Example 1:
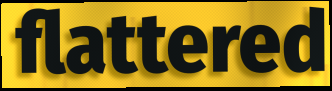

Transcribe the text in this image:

flattered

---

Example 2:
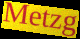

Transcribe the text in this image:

Metzg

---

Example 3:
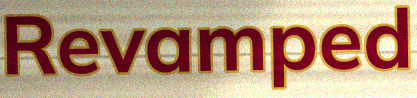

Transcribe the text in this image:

Revamped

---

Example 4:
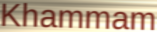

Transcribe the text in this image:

Khammam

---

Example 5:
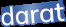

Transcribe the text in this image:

darat